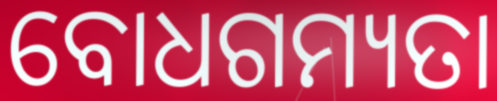
ବୋଧଗମ୍ୟତା